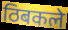
ठिबकले